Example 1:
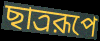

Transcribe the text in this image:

ছাত্ররূপে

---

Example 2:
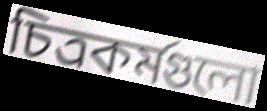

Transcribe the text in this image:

চিত্রকর্মগুলো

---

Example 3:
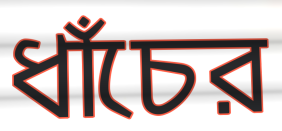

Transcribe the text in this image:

ধাঁচের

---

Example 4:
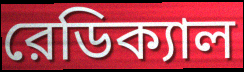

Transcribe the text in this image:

রেডিক্যাল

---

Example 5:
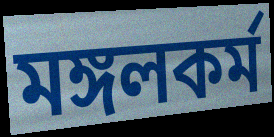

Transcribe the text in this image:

মঙ্গলকর্ম